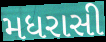
મધરાસી